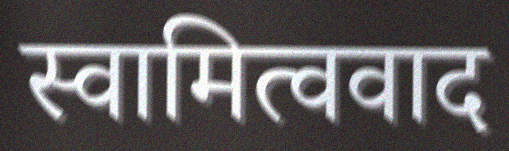
स्वामित्ववाद